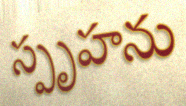
స్పృహను